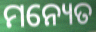
ମନ୍ୟେତ